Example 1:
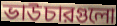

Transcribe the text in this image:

ভাউচারগুলো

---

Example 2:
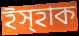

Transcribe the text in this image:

ইস্‌হাক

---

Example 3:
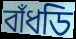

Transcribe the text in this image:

বাঁধডি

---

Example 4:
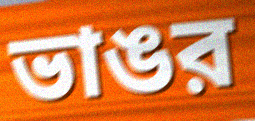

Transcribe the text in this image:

ভাঙর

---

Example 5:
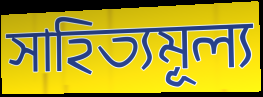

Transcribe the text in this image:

সাহিত্যমূল্য